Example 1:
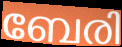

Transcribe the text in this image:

ബേരി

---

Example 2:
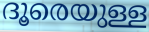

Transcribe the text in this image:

ദൂരെയുള്ള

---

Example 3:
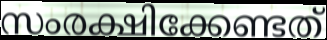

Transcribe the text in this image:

സംരക്ഷിക്കേണ്ടത്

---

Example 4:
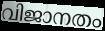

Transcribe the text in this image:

വിജാനതം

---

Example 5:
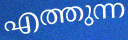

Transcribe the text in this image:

എത്തുന്ന